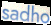
sadho